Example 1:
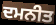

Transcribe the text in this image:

ਦਮਨੀਤ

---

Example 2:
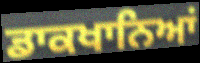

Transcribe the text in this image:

ਡਾਕਖਾਨਿਆਂ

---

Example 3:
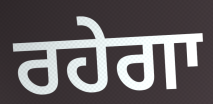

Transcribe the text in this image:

ਰਹੇਗਾ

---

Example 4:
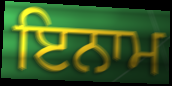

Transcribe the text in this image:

ਇਨਾਮ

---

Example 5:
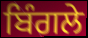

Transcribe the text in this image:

ਬਿੰਗਲੇ